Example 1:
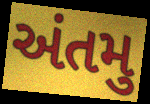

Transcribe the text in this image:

અંતમુ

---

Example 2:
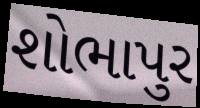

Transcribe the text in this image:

શોભાપુર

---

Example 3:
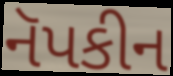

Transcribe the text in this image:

નૅપકીન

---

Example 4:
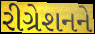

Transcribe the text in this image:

રીગ્રેશનને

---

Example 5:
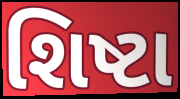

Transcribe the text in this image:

શિષ્ટા